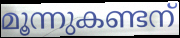
മൂന്നുകണ്ടന്